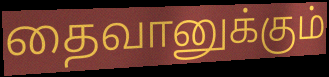
தைவானுக்கும்